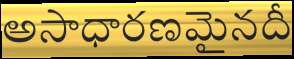
అసాధారణమైనదీ